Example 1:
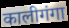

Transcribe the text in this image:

कालीगंगा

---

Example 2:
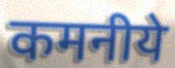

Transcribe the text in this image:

कमनीये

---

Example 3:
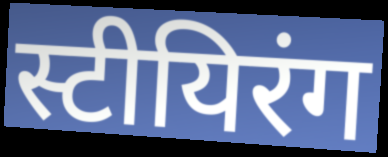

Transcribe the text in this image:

स्टीयिरंग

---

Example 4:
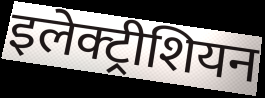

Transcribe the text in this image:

इलेक्‍ट्रीशियन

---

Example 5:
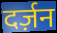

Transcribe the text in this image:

दर्ज़न